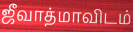
ஜீவாத்மாவிடம்